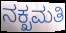
ನಕ್ಖಮತಿ